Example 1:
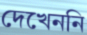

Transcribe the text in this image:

দেখেননি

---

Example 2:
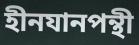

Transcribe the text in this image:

হীনযানপন্থী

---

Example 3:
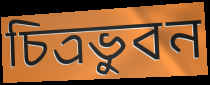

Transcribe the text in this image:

চিত্রভুবন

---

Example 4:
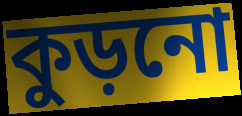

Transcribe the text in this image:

কুড়নো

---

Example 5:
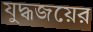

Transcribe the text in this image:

যুদ্ধজয়ের